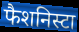
फैशनिस्टा